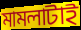
মামলাটাই